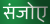
संजोए